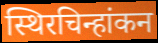
स्थिरचिन्हांकन